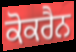
ਕੋਕਰੈਨ